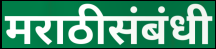
मराठीसंबंधी